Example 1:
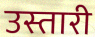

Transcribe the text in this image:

उस्तारी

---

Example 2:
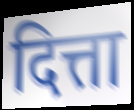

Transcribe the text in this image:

दित्ता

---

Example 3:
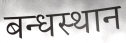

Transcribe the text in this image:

बन्धस्थान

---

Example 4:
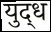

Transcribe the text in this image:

युद्‍ध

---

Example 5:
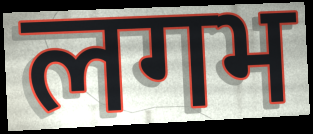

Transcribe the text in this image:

लगभ